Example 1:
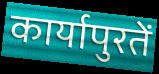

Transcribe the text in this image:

कार्यापुरतें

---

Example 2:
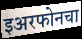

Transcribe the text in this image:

इअरफोनचा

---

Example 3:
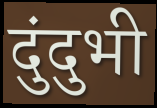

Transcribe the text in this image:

दुंदुभी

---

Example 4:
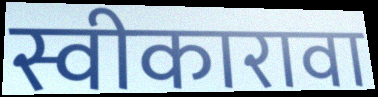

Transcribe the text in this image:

स्वीकारावा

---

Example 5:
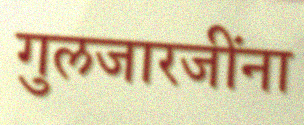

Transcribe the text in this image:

गुलजारजींना